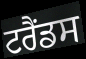
ਟਰੈਂਡਸ